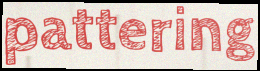
pattering